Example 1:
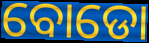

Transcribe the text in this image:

ବୋଡୋ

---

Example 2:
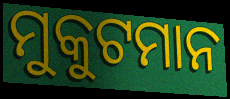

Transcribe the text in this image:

ମୁକୁଟମାନ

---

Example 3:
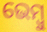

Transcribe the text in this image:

ଭେମ୍ବୁ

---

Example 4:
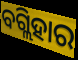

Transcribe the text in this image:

ବଗ୍ଲିହାର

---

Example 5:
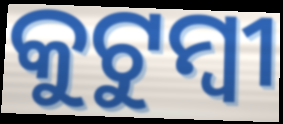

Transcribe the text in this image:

କୁଟୁମ୍ବୀ